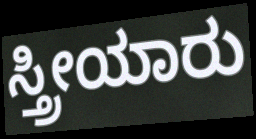
ಸ್ತ್ರೀಯಾರು